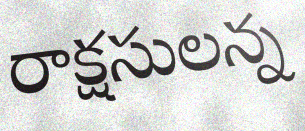
రాక్షసులన్న